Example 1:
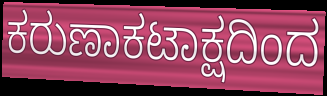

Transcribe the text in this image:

ಕರುಣಾಕಟಾಕ್ಷದಿಂದ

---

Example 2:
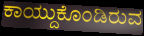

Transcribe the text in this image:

ಕಾಯ್ದುಕೊಂಡಿರುವ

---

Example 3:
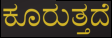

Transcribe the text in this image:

ಕೂರುತ್ತದೆ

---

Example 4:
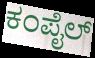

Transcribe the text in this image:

ಕಂಪೈಲ್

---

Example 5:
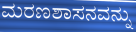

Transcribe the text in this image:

ಮರಣಶಾಸನವನ್ನು